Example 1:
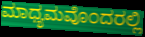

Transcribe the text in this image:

ಮಾಧ್ಯಮವೊಂದರಲ್ಲಿ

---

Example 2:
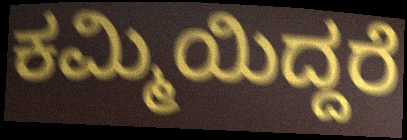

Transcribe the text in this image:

ಕಮ್ಮಿಯಿದ್ದರೆ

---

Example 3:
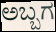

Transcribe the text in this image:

ಅಬ್ಬಗ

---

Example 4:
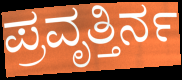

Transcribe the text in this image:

ಪ್ರವೃತ್ತಿರ್ನ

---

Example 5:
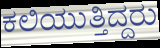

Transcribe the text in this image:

ಕಲಿಯುತ್ತಿದ್ದರು